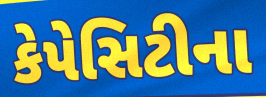
કેપેસિટીના